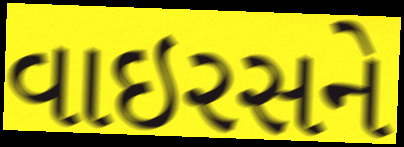
વાઇરસને